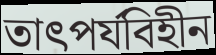
তাৎপর্যবিহীন